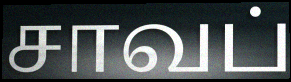
சாவப்